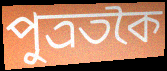
পুত্ৰতকৈ